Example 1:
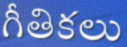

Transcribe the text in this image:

గీతికలు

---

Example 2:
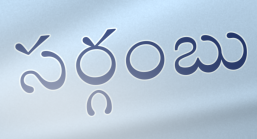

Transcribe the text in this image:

సర్గంబు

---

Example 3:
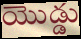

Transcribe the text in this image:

యొడ్డు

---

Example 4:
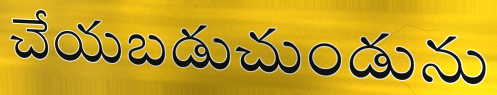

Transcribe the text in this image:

చేయబడుచుండును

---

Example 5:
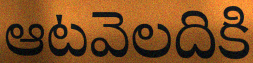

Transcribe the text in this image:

ఆటవెలదికి